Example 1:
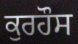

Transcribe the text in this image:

ਕੁਰਹੌਸ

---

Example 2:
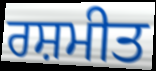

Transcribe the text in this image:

ਰਸ਼ਮੀਤ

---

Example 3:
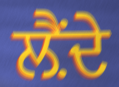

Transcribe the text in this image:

ਲ਼ੈਂਦੇ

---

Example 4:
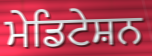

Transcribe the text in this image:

ਮੇਡਿਟੇਸ਼ਨ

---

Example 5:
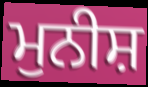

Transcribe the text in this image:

ਮੁਨੀਸ਼